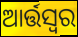
ଆର୍ତ୍ତସ୍ୱର